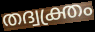
തദ്വക്ത്രം